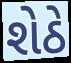
શેઠે